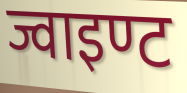
ज्वाइण्ट